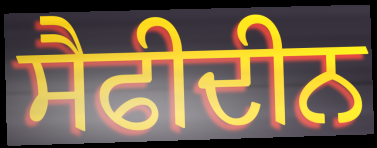
ਸੈਫੀਦੀਨ